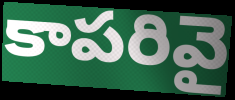
కాపరివై